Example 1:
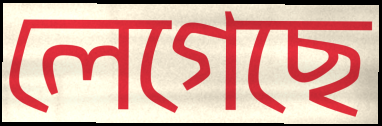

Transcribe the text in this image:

লেগেছে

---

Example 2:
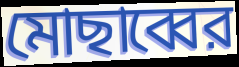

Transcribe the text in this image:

মোছাব্বের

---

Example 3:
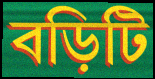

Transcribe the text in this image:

বড়িটি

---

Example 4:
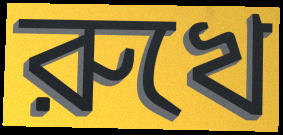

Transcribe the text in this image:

রুখে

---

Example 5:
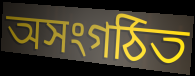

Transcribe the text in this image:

অসংগঠিত